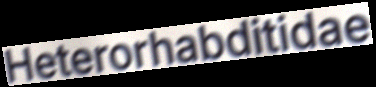
Heterorhabditidae